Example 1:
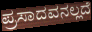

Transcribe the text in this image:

ಪ್ರಸಾದವನಲ್ಲದೆ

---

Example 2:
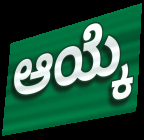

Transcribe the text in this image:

ಆಯ್ಕೆ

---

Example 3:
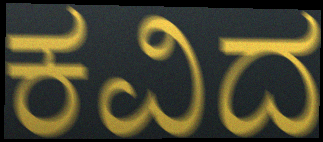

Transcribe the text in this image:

ಕವಿದ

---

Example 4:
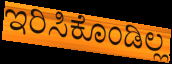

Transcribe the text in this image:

ಇರಿಸಿಕೊಂಡಿಲ್ಲ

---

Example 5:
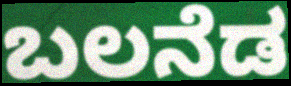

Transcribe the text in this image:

ಬಲನೆಡ